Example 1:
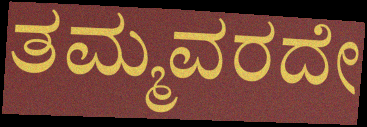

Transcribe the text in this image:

ತಮ್ಮವರದೇ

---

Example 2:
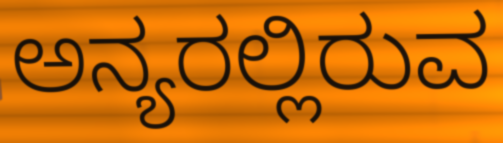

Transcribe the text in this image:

ಅನ್ಯರಲ್ಲಿರುವ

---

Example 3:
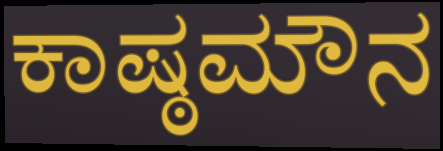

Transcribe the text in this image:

ಕಾಷ್ಠಮೌನ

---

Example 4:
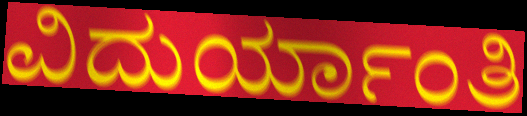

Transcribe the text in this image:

ವಿದುರ್ಯಾಂತಿ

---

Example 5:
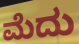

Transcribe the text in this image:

ಮೆದು